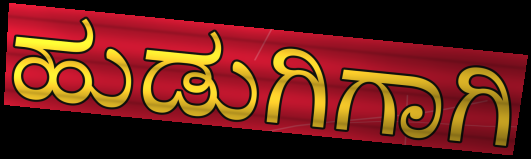
ಹುಡುಗಿಗಾಗಿ